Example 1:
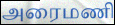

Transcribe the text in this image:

அரைமணி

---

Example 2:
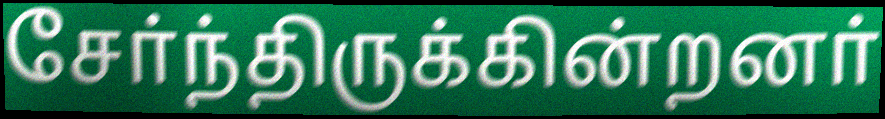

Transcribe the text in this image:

சேர்ந்திருக்கின்றனர்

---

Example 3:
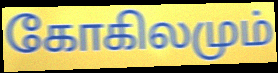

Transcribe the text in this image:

கோகிலமும்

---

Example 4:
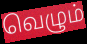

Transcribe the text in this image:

வெழும்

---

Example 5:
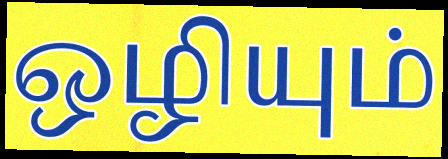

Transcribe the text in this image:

ஒழியும்